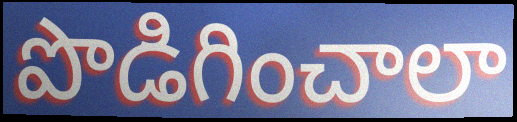
పొడిగించాలా